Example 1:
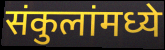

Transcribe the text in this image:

संकुलांमध्ये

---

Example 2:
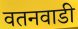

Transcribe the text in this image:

वतनवाडी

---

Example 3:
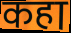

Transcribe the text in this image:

कहा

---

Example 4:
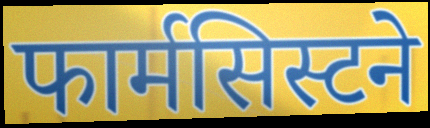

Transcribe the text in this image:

फार्मसिस्टने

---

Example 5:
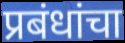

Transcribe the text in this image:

प्रबंधांचा